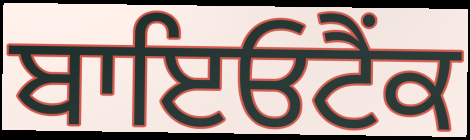
ਬਾਇਓਟੈਂਕ